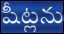
షీట్లను